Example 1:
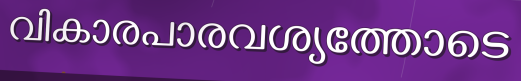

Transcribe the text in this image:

വികാരപാരവശ്യത്തോടെ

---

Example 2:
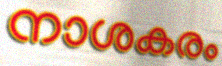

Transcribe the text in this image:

നാശകരം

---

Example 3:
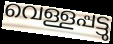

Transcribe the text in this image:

വെള്ളപ്പട്ടു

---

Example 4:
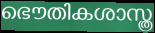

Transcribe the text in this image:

ഭൌതികശാസ്ത്ര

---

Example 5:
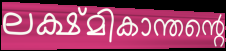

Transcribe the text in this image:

ലക്ഷ്മികാന്തന്റെ